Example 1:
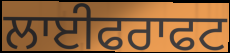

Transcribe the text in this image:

ਲਾਈਫਰਾਫਟ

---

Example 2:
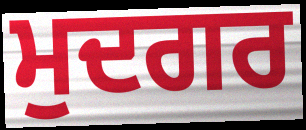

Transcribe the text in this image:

ਮੁਦਗਰ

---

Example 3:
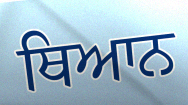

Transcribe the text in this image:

ਥਿਆਨ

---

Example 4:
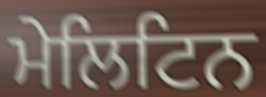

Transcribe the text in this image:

ਮੇਲਿਟਿਨ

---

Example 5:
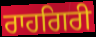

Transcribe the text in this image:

ਰਾਹਗਿਰੀ